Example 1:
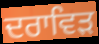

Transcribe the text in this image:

ਦਰਾਵਿੜ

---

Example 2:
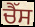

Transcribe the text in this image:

ਚੈੱਸ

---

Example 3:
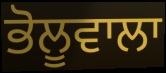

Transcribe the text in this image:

ਭੋਲੂਵਾਲਾ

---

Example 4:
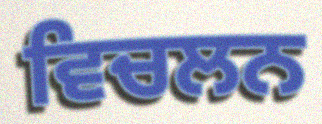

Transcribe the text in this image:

ਵਿਚਲਨ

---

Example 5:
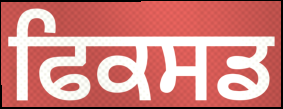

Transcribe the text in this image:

ਫਿਕਸਡ